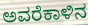
ಅವರೆಕಾಳಿನ